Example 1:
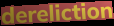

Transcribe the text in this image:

dereliction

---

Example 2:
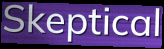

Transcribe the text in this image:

Skeptical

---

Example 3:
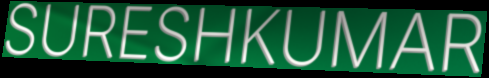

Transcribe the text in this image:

SURESHKUMAR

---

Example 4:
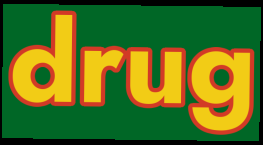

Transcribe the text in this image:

drug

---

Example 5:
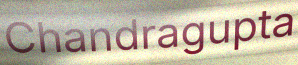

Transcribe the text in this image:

Chandragupta